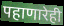
पहाणारेही